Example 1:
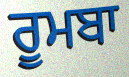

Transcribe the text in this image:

ਰੂਮਬਾ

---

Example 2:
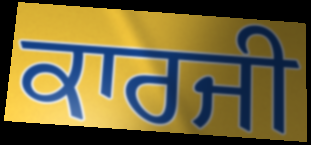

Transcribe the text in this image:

ਕਾਰਜੀ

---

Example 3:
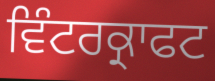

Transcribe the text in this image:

ਵਿੰਟਰਕ੍ਰਾਫਟ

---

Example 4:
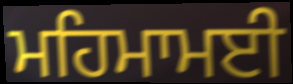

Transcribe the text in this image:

ਮਹਿਮਾਮਈ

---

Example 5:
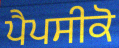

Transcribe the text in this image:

ਪੈਪਸੀਕੋ